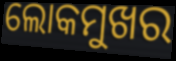
ଲୋକମୁଖର